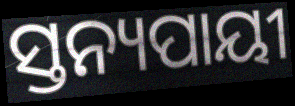
ସ୍ତନ୍ୟପାୟୀ